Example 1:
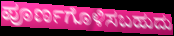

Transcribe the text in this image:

ಪೂರ್ಣಗೊಳಿಸಬಹುದು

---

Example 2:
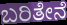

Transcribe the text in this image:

ಬರಿತೇನೆ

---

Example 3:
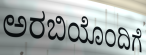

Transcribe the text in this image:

ಅರಬಿಯೊಂದಿಗೆ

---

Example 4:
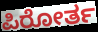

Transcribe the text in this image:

ಪಿರೋರ್ತ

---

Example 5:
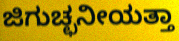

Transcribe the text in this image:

ಜಿಗುಚ್ಛನೀಯತ್ತಾ